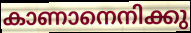
കാണാനെനിക്കു